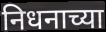
निधनाच्या